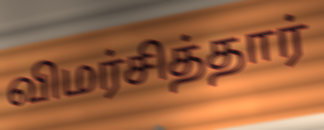
விமர்சித்தார்